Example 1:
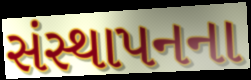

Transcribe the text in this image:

સંસ્થાપનના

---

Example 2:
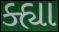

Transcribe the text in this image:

ક્હ્યા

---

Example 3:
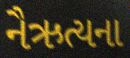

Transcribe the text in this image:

નૈઋત્યના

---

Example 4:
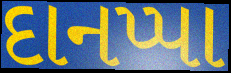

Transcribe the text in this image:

દાનપ્પા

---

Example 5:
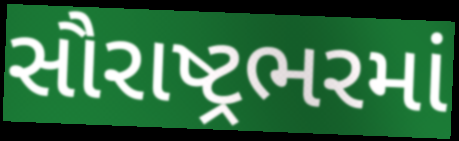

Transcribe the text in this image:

સૌરાષ્ટ્રભરમાં